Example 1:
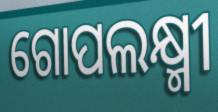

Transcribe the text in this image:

ଗୋପଲକ୍ଷ୍ମୀ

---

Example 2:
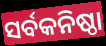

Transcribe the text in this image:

ସର୍ବକନିଷ୍ଠା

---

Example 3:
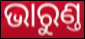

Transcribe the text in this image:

ଭାରୁଣ୍ତ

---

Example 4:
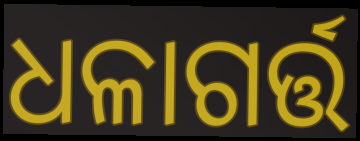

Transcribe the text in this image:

ଧଳାଗର୍ତ୍ତ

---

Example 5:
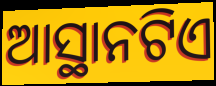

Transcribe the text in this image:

ଆସ୍ଥାନଟିଏ